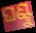
ଘଣ୍ଟୁ